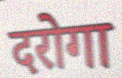
दरोगा